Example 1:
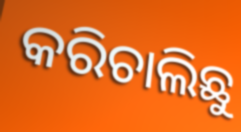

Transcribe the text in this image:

କରିଚାଲିଛୁ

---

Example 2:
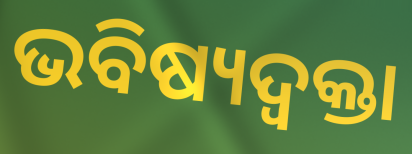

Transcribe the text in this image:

ଭବିଷ୍ୟଦ୍ବକ୍ତା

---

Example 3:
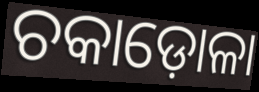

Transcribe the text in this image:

ଚକାଡ଼ୋଳା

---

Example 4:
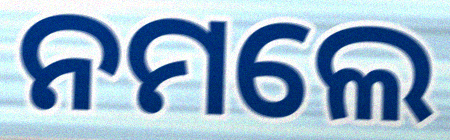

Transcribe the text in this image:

ନମଲେ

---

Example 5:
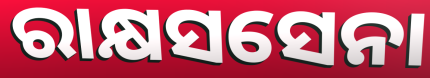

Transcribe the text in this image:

ରାକ୍ଷସସେନା